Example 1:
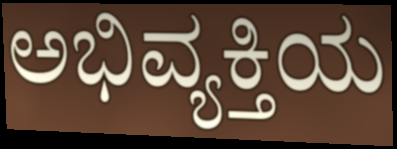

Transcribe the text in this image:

ಅಭಿವ್ಯಕ್ತಿಯ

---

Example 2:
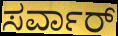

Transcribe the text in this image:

ಸರ್ವಾರ್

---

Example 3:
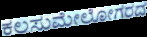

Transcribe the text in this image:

ಕಲಸುಮೇಲೋಗರದ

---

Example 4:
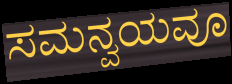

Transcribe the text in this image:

ಸಮನ್ವಯವೂ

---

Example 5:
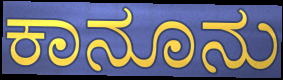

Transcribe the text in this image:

ಕಾನೂನು